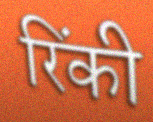
रिंकी